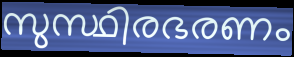
സുസ്ഥിരഭരണം